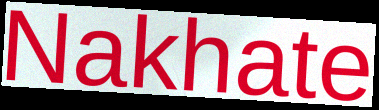
Nakhate